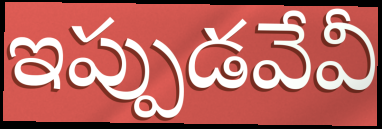
ఇప్పుడవేవీ